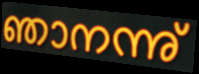
ഞാനന്നു്